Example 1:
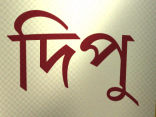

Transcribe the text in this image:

দিপু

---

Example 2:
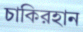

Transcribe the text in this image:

চাকিরহান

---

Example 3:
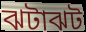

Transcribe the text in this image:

ঝটাঝট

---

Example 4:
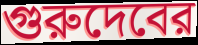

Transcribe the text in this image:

গুরুদেবের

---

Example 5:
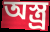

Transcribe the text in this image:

অস্ত্র্র